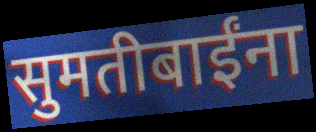
सुमतीबाईंना